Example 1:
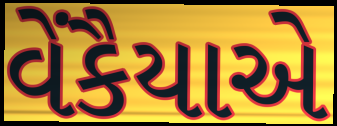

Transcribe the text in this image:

વેંકૈયાએ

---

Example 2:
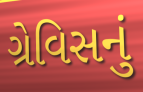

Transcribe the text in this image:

ગ્રેવિસનું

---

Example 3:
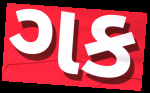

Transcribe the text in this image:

ગક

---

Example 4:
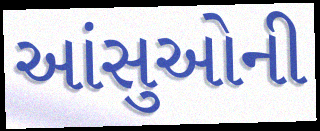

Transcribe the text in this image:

આંસુઓની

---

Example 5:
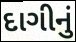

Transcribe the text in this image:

દાગીનું